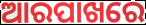
ଆରପାଖରେ